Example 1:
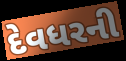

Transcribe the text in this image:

દેવધરની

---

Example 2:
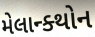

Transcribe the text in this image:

મેલાન્ક્થોન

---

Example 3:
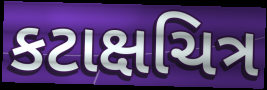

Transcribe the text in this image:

કટાક્ષચિત્ર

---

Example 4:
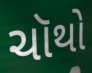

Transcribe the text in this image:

ચૉથો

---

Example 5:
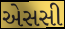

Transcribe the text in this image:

એસસી